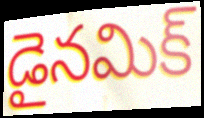
డైనమిక్